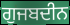
ਗੁਜਬਦੀਨ